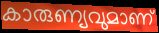
കാരുണ്യവുമാണ്